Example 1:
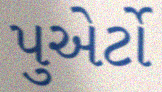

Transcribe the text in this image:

પુએર્ટો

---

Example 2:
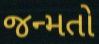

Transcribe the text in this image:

જન્મતો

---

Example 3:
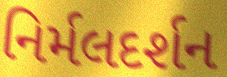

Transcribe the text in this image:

નિર્મલદર્શન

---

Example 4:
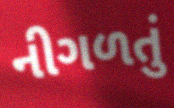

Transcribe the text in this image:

નીગળતું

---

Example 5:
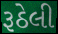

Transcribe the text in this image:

રૂઠેલી